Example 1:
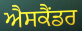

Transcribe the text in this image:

ਐਸਕੈਂਡਰ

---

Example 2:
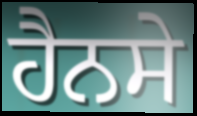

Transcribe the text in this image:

ਹੈਨਸੇ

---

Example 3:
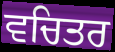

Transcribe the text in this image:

ਵਚਿਤਰ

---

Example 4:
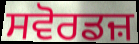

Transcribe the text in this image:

ਸਵੋਰਡਜ਼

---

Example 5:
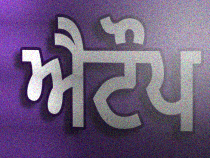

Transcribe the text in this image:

ਐਟੌਪ